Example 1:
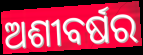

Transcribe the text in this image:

ଅଶୀବର୍ଷର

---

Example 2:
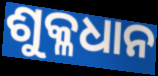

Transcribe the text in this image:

ଶୁକ୍ଳଧାନ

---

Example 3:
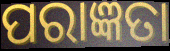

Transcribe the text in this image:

ପରାଜ୍ଞତା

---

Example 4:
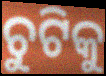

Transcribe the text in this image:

ଚୁଟିକୁ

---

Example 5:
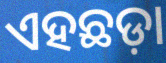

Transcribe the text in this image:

ଏହଛଡ଼ା